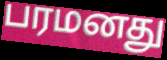
பரமனது